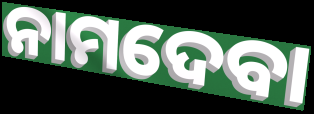
ନାମଦେବା